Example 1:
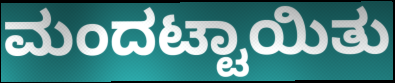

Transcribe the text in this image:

ಮಂದಟ್ಟಾಯಿತು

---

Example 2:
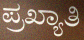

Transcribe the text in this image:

ಪ್ರಖ್ಯಾತಿ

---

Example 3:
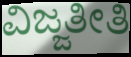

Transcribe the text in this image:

ವಿಜ್ಜತೀತಿ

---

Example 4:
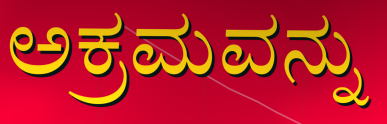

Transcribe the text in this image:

ಅಕ್ರಮವನ್ನು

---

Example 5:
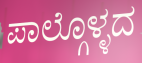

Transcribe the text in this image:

ಪಾಲ್ಗೊಳ್ಳದ